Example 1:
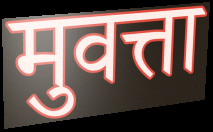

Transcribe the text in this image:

मुवत्ता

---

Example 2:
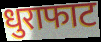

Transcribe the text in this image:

धुराफाट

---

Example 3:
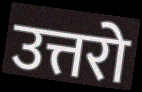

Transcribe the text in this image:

उत्तरो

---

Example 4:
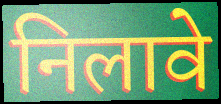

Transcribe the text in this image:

निलावे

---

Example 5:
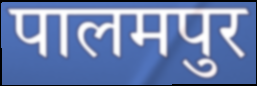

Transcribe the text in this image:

पालमपुर